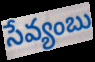
సేవ్యంబు